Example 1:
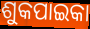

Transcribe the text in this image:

ଶୁକପାଇକା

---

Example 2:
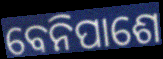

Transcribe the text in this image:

ବେନିପାଶେ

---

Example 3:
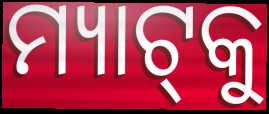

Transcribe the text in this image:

ମ୍ୟାଟ୍‌କୁ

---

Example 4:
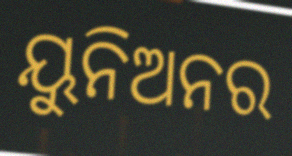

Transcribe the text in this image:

ୟୁନିଅନର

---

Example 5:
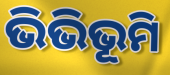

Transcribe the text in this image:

ଭିଭିଭୂମି